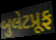
બુલેટપ્રૂફ